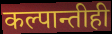
कल्पान्तीही